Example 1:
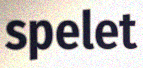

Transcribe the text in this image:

spelet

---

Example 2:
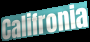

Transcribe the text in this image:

Califronia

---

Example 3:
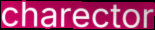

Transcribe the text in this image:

charector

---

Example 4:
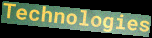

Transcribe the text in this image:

Technologies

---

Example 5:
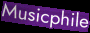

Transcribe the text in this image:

Musicphile